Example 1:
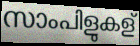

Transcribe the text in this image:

സാംപിളുകള്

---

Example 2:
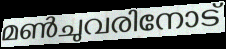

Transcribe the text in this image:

മൺചുവരിനോട്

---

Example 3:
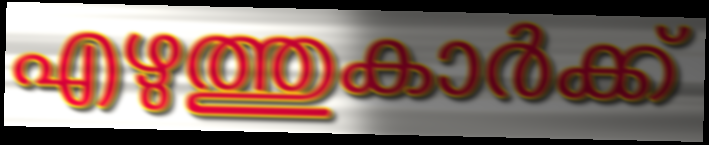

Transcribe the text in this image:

എഴുത്തുകാർക്ക്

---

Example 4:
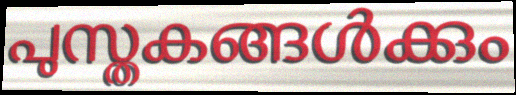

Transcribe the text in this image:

പുസ്തകങ്ങൾക്കും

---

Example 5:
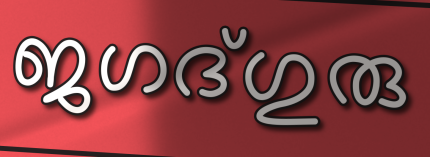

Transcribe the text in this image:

ജഗദ്ഗുരു